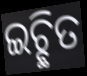
ଇଚ୍ଛିତ